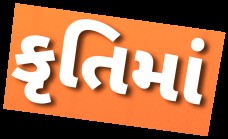
કૃતિમાં